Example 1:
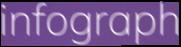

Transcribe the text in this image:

infograph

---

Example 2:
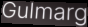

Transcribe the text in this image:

Gulmarg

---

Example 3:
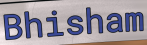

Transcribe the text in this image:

Bhisham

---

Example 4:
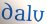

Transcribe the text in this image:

dalu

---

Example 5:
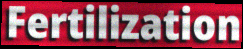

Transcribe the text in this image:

Fertilization